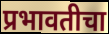
प्रभावतीचा